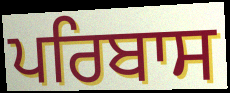
ਪਰਿਬਾਸ